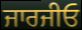
ਜਾਰਜੀਓ